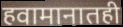
हवामानातही